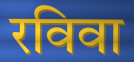
रविवा